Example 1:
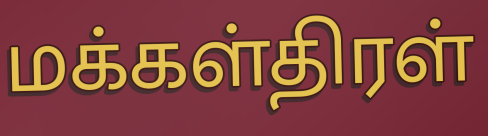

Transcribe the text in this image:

மக்கள்திரள்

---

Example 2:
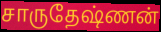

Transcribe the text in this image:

சாருதேஷ்ணன்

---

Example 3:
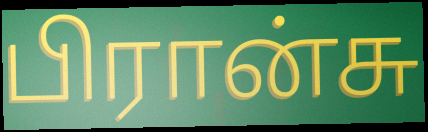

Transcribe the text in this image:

பிரான்சு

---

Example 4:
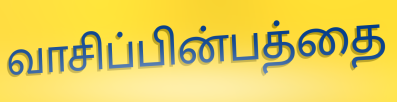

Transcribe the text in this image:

வாசிப்பின்பத்தை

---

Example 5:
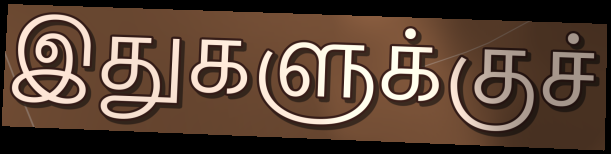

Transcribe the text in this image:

இதுகளுக்குச்